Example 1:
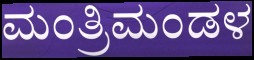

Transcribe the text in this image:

ಮಂತ್ರಿಮಂಡಳ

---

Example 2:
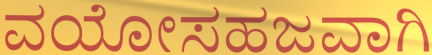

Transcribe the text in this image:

ವಯೋಸಹಜವಾಗಿ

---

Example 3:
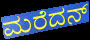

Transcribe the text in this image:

ಮರೆದನ್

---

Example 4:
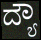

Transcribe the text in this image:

ದ್ಯೌ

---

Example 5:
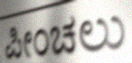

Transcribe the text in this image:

ಪೀಂಚಲು